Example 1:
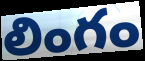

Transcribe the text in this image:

లింగం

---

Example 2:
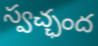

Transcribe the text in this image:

స్వచ్ఛంద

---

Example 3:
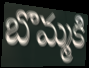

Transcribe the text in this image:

బొమ్మకి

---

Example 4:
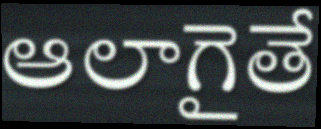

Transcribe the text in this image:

ఆలాగైతే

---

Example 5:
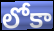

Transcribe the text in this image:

లోకా